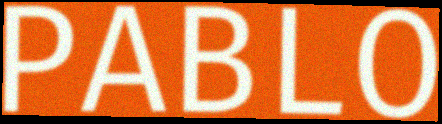
PABLO